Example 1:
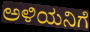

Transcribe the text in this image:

ಅಳಿಯನಿಗೆ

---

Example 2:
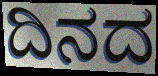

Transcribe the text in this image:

ದಿನದ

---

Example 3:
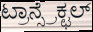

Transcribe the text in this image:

ಟ್ರಾನ್ಸ್ರೆಕ್ಟಲ್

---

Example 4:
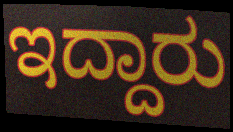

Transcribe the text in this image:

ಇದ್ದಾರು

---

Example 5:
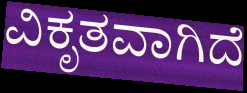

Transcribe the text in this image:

ವಿಕೃತವಾಗಿದೆ